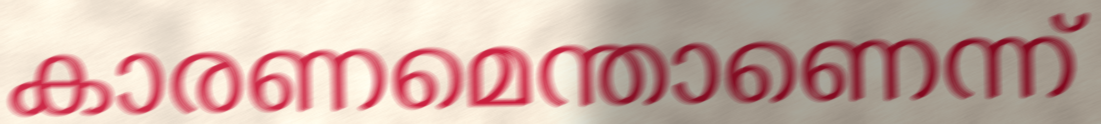
കാരണമെന്താണെന്ന്